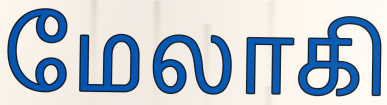
மேலாகி